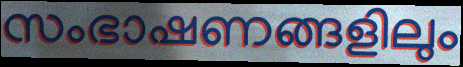
സംഭാഷണങ്ങളിലും